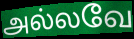
அல்லவே